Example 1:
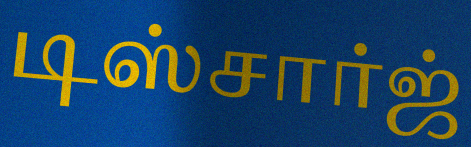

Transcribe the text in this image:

டிஸ்சார்ஜ்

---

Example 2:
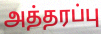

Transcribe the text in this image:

அத்தரப்பு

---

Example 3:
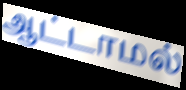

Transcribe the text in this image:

ஆட்டாமல்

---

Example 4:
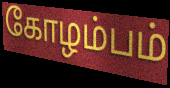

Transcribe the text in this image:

கோழம்பம்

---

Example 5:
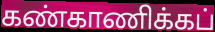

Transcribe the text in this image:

கண்காணிக்கப்